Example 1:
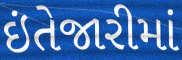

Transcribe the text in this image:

ઇંતેજારીમાં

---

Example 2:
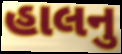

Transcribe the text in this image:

હાલનુ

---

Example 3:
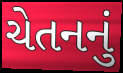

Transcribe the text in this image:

ચેતનનું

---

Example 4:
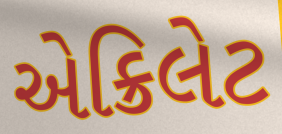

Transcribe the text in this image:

એક્રિલેટ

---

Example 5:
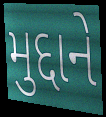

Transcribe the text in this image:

મુદ્દાને